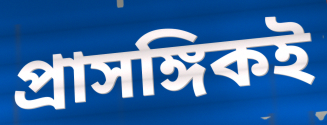
প্রাসঙ্গিকই